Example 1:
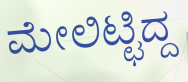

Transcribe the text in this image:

ಮೇಲಿಟ್ಟಿದ್ದ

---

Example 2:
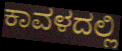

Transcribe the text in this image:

ಕಾವಳದಲ್ಲಿ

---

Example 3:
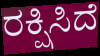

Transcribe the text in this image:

ರಕ್ಷಿಸಿದೆ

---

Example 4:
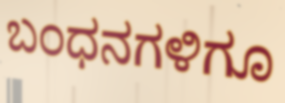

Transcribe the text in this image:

ಬಂಧನಗಳಿಗೂ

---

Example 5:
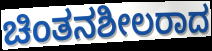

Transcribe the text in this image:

ಚಿಂತನಶೀಲರಾದ